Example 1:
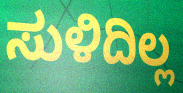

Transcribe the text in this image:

ಸುಳಿದಿಲ್ಲ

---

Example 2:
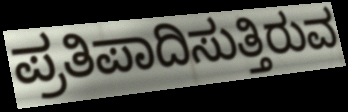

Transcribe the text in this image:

ಪ್ರತಿಪಾದಿಸುತ್ತಿರುವ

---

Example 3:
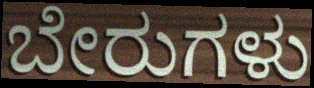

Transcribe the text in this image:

ಬೇರುಗಳು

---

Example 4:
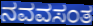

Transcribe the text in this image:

ನವವಸಂತ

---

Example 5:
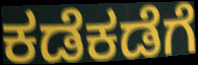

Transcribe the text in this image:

ಕಡೆಕಡೆಗೆ